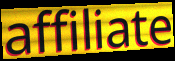
affiliate